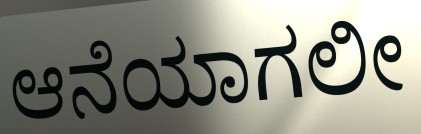
ಆನೆಯಾಗಲೀ